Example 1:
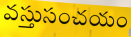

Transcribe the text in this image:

వస్తుసంచయం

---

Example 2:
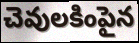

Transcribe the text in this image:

చెవులకింపైన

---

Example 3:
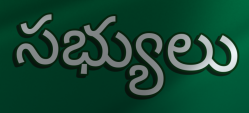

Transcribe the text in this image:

సభ్యులు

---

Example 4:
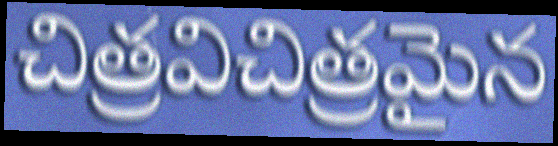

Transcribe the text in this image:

చిత్రవిచిత్రమైన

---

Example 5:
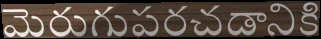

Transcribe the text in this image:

మెరుగుపరచడానికి